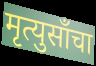
मृत्युसाँचा